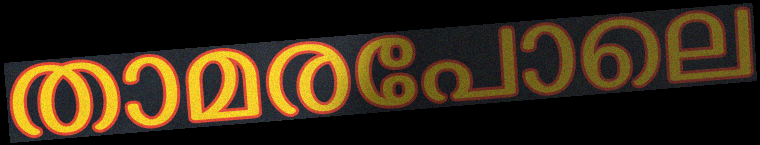
താമരപോലെ